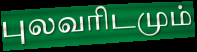
புலவரிடமும்